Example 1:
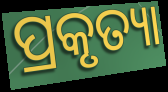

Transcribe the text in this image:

ପ୍ରକୃତ୍ୟା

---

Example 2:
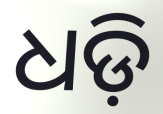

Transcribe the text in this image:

ଧଡ଼ି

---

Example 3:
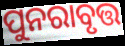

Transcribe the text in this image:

ପୁନରାବୃତ୍ତ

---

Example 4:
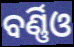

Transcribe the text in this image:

ବର୍ଣ୍ଣିଓ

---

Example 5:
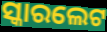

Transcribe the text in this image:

ସ୍କାରଲେଟ